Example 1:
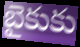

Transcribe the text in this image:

బైకుకు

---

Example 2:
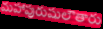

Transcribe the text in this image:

మహాపురుషులౌతారు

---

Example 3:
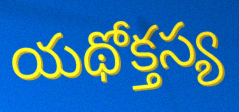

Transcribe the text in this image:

యథోక్తస్య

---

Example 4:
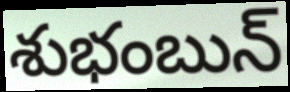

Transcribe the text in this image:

శుభంబున్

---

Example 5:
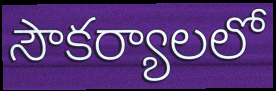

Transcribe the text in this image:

సౌకర్యాలలో